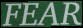
FEAR